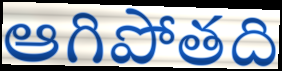
ఆగిపోతది